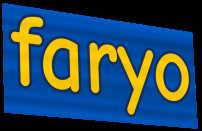
faryo